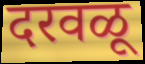
दरवळू